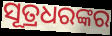
ସୂତ୍ରଧରଙ୍କର